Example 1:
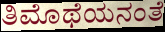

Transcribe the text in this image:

ತಿಮೊಥೆಯನಂತೆ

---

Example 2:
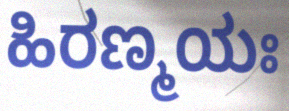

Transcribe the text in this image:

ಹಿರಣ್ಮಯಃ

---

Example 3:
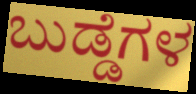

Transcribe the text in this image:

ಬುಡ್ಡೆಗಳ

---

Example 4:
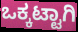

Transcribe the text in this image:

ಒಕ್ಕಟ್ಟಾಗಿ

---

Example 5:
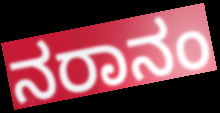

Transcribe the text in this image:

ನರಾನಂ